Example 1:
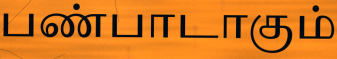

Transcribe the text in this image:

பண்பாடாகும்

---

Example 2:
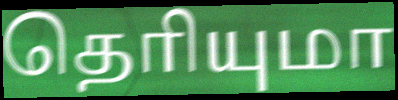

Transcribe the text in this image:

தெரியுமா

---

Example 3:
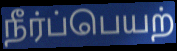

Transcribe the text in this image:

நீர்ப்பெயற்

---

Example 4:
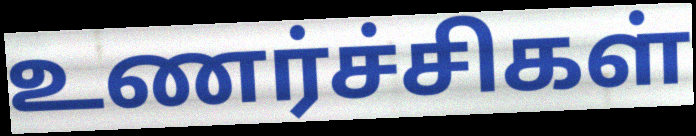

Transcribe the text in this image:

உணர்ச்சிகள்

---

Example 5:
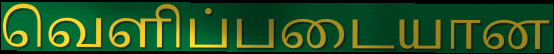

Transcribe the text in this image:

வெளிப்படையான